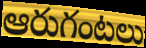
ఆరుగంటలు